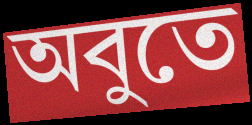
অবুতে